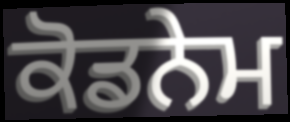
ਕੋਡਨੇਮ